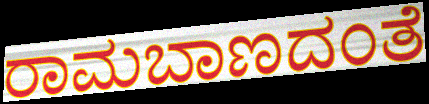
ರಾಮಬಾಣದಂತೆ